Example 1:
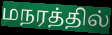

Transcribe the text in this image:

மநரத்தில்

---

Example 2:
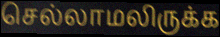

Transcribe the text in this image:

செல்லாமலிருக்க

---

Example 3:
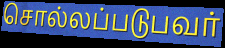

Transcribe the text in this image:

சொல்லப்படுபவர்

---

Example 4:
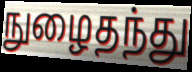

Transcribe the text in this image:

நுழைதந்து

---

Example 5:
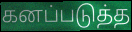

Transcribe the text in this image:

கனப்படுத்த